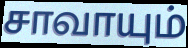
சாவாயும்